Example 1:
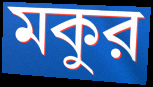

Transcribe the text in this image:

মকুর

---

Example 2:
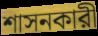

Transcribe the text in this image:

শাসনকারী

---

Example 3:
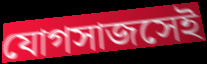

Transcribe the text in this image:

যোগসাজসেই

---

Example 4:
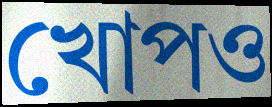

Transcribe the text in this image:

খোপও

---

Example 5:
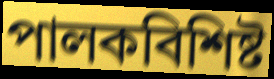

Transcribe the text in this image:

পালকবিশিষ্ট